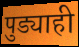
पुड्याही